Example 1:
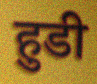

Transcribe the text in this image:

हुडी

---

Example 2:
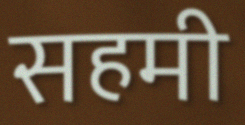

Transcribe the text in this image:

सहमी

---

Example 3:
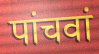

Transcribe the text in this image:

पांचवां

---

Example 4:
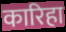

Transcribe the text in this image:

कारिहा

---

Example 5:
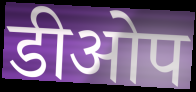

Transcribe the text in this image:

डीओप